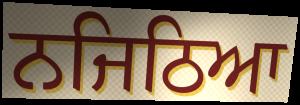
ਨਜਿਠਿਆ